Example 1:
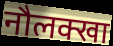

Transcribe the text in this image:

नौलक्खा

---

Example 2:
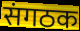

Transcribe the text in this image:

संगठक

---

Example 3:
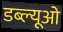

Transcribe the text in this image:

डब्ल्यूओ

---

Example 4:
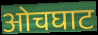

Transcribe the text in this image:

ओचघाट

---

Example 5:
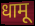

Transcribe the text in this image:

धामू